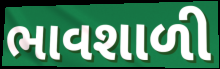
ભાવશાળી